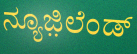
ನ್ಯೂಜ಼ಿಲೆಂಡ್